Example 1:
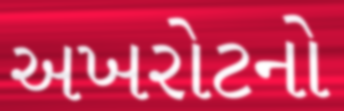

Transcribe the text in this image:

અખરોટનો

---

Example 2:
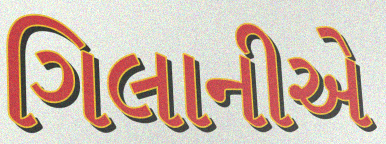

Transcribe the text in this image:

ગિલાનીએ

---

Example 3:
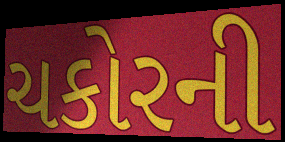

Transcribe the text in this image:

ચકોરની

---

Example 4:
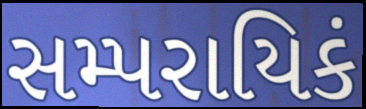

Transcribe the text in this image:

સમ્પરાયિકં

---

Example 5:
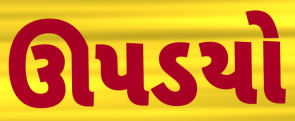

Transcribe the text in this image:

ઊપડયો